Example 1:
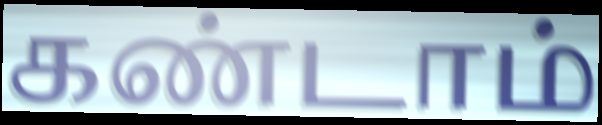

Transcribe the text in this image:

கண்டாம்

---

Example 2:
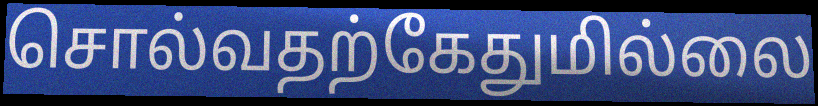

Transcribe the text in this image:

சொல்வதற்கேதுமில்லை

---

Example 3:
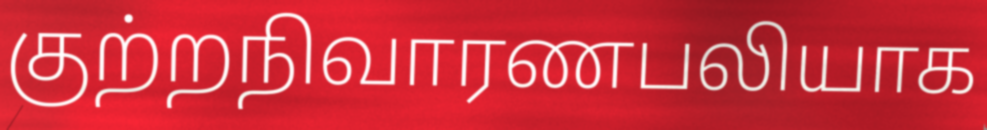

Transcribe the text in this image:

குற்றநிவாரணபலியாக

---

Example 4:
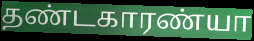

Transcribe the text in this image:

தண்டகாரண்யா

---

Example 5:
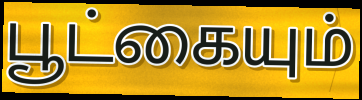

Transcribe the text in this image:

பூட்கையும்